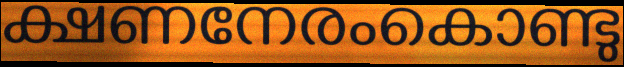
ക്ഷണനേരംകൊണ്ടു